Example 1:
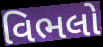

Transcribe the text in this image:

વિભલો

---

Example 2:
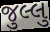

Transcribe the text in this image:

જુલ્લુ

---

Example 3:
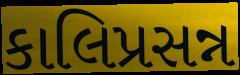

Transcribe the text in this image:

કાલિપ્રસન્ન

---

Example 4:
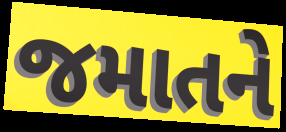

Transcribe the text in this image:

જમાતને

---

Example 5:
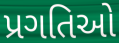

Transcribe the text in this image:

પ્રગતિઓ